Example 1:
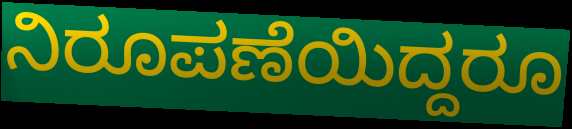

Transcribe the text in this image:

ನಿರೂಪಣೆಯಿದ್ದರೂ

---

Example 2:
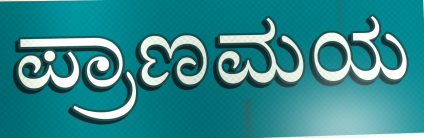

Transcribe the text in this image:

ಪ್ರಾಣಮಯ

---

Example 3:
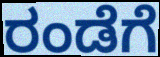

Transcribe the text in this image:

ರಂಡೆಗೆ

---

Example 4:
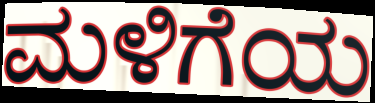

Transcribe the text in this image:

ಮಳಿಗೆಯ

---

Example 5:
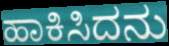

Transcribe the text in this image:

ಹಾಕಿಸಿದನು